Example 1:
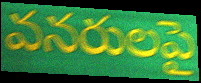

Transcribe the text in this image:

వనరులపై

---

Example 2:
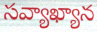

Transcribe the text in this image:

సవ్యాఖ్యాన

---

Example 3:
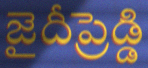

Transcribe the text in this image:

జైదీప్రెడ్డి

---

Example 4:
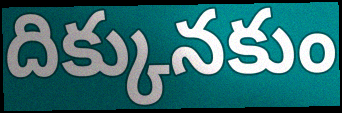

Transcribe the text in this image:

దిక్కునకుం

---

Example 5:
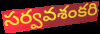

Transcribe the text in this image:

సర్వవశంకరి